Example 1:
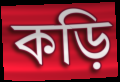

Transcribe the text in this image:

কড়ি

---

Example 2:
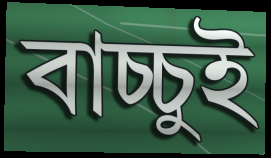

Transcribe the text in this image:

বাচ্চুই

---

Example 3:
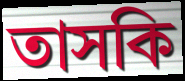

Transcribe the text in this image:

তাসকি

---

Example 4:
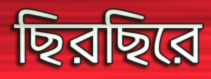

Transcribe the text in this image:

ছিরছিরে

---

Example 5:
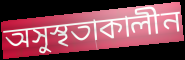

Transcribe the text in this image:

অসুস্থতাকালীন